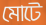
মোটে